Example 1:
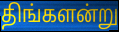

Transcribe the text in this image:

திங்களன்று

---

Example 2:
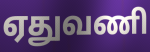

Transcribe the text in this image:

ஏதுவணி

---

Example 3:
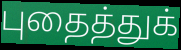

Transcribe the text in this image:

புதைத்துக்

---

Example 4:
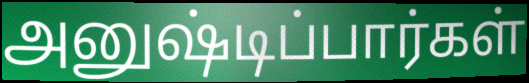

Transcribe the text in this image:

அனுஷ்டிப்பார்கள்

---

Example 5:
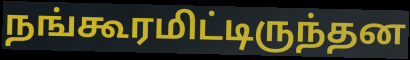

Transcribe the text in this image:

நங்கூரமிட்டிருந்தன